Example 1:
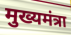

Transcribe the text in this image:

मुख्यमंत्रा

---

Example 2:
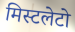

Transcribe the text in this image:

मिस्टलेटो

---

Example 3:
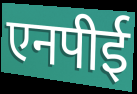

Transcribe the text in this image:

एनपीई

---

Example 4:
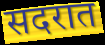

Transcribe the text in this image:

सदरात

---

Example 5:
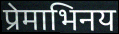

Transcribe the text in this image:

प्रेमाभिनय